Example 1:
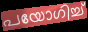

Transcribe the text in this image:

പയോഗിച്ച്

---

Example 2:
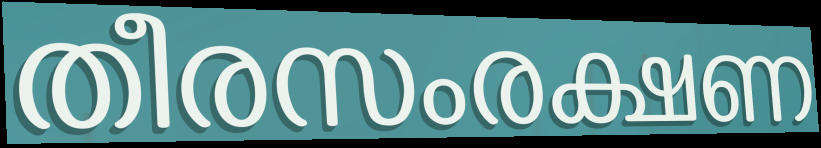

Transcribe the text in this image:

തീരസംരക്ഷണ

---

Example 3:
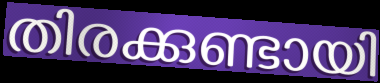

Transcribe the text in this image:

തിരക്കുണ്ടായി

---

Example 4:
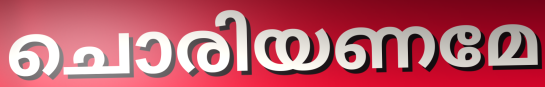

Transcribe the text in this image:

ചൊരിയണമേ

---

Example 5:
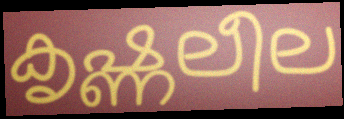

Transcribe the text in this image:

കൃഷ്ണലീല